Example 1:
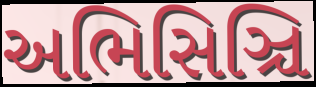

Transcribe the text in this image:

અભિસિઞ્ચિ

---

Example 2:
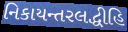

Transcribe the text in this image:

નિકાયન્તરલદ્ધીહિ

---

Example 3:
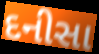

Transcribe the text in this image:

દનીસા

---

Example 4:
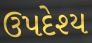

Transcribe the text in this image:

ઉપદેશ્ય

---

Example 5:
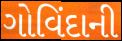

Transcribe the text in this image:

ગોવિંદાની